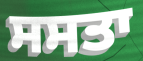
ਸਸਤਾ